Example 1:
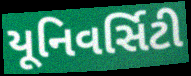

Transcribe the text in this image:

યૂનિવર્સિટી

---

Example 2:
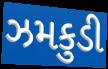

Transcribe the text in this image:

ઝમકુડી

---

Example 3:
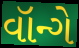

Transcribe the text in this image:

વૉન્ગે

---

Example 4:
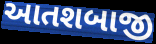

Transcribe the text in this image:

આતશબાજી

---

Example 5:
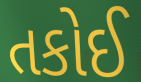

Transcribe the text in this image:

તકોઈ